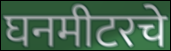
घनमीटरचे